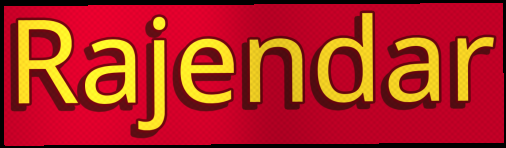
Rajendar